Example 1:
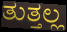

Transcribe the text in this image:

ತುತ್ತಲ್ಲ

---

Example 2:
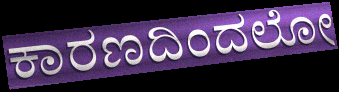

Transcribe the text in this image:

ಕಾರಣದಿಂದಲೋ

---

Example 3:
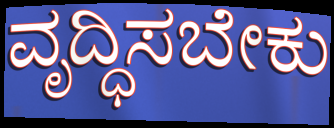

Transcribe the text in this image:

ವೃದ್ಧಿಸಬೇಕು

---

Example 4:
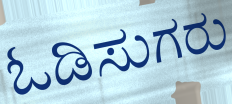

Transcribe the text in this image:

ಓಡಿಸುಗರು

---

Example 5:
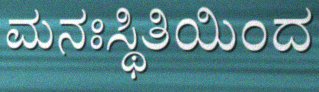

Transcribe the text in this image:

ಮನಃಸ್ಥಿತಿಯಿಂದ